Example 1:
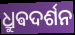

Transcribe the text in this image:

ଧ୍ରୁଵଦର୍ଶନ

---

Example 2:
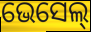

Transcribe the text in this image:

ଭେସେଲ୍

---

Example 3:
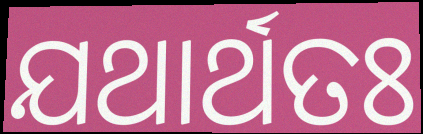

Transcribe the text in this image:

ଯଥାର୍ଥତଃ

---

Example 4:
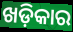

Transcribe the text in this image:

ଖଡ଼ିକାର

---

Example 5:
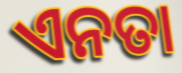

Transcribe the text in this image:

ଏନତା